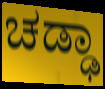
ಚಡ್ಢಾ